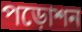
পড়োশন